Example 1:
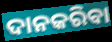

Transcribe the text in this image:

ଦାନକରିବା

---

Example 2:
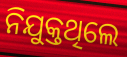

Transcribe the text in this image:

ନିଯୁକ୍ତଥିଲେ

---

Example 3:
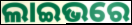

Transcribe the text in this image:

ଲାଇଭରେ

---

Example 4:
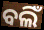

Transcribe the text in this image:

ବଲିଁ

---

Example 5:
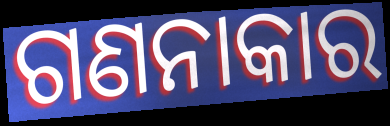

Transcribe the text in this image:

ଗଣନାକାର